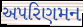
અપરિણમન